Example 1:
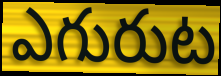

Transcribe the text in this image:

ఎగురుట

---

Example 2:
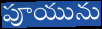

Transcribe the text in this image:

పూయును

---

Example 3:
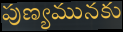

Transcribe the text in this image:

పుణ్యమునకు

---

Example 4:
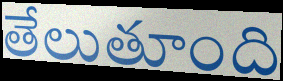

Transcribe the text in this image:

తేలుతూంది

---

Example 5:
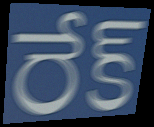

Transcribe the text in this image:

రేక్